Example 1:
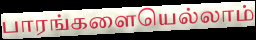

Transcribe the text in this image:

பாரங்களையெல்லாம்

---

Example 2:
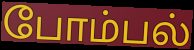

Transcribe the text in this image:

போம்பல்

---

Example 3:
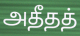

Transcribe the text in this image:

அதீதத்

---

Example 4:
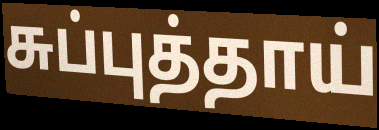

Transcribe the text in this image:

சுப்புத்தாய்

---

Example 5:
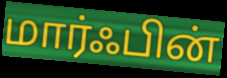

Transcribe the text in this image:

மார்ஃபின்